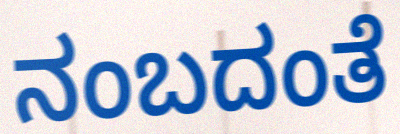
ನಂಬದಂತೆ